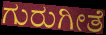
ಗುರುಗೀತೆ